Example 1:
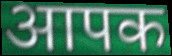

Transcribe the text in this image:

आपक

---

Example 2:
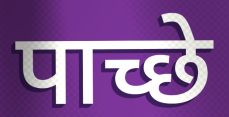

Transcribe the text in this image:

पाच्छे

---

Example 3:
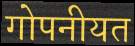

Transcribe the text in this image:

गोपनीयत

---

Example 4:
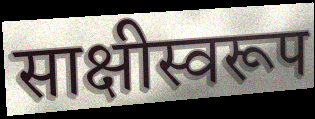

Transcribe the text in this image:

साक्षीस्वरूप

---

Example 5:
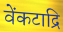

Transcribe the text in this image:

वेंकटाद्रि